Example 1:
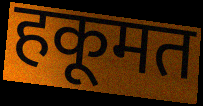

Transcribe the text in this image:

हकूमत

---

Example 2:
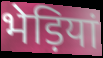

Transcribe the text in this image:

भेड़ियां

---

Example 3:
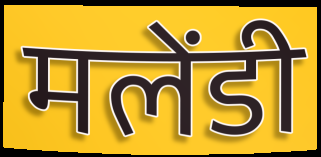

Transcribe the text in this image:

मलेंडी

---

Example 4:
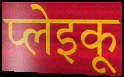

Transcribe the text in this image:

प्लेइकू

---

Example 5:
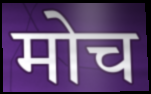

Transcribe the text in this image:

मोच